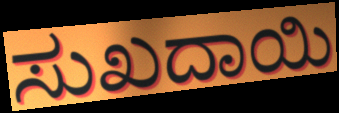
ಸುಖದಾಯಿ